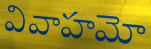
వివాహమో